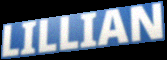
LILLIAN